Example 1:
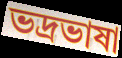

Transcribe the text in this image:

ভদ্রভাষা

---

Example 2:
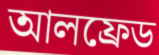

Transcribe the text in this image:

আলফ্রেড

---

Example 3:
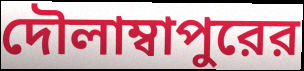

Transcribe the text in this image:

দৌলাম্বাপুরের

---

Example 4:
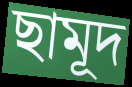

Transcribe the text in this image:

ছামূদ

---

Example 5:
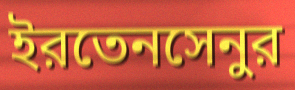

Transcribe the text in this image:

ইরতেনসেনুর